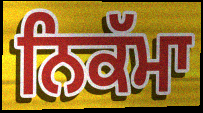
ਨਿਕੱਮਾ